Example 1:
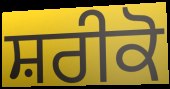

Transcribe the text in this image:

ਸ਼ਰੀਕੋ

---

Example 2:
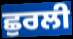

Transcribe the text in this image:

ਛੁਰਲੀ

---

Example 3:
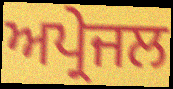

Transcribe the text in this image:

ਅਪ੍ਰੇਜਲ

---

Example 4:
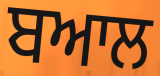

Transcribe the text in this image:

ਬਆਲ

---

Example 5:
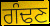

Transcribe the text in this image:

ਗੰਢਣ